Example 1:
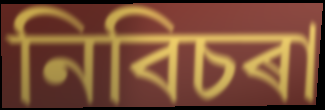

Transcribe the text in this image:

নিবিচৰা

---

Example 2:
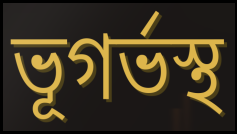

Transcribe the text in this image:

ভূগৰ্ভস্থ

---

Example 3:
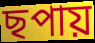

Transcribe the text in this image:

ছপায়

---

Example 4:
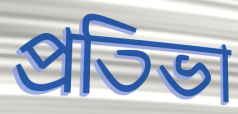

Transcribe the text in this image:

প্ৰতিভা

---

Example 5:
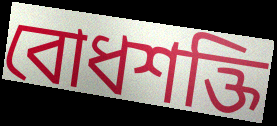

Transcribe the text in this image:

বোধশক্তি